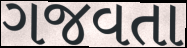
ગજવતા